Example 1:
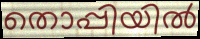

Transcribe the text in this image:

തൊപ്പിയിൽ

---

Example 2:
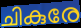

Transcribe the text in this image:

ചികുരേ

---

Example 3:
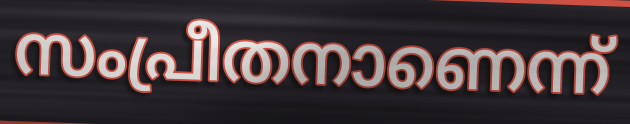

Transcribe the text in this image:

സംപ്രീതനാണെന്ന്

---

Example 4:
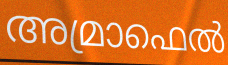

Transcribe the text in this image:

അമ്രാഫെൽ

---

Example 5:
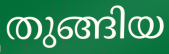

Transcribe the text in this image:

തുങ്ങിയ